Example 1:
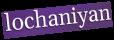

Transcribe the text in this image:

lochaniyan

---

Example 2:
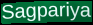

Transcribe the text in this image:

Sagpariya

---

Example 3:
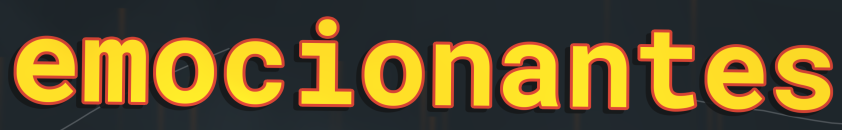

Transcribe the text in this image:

emocionantes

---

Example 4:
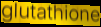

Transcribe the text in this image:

glutathione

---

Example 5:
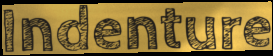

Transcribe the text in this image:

Indenture